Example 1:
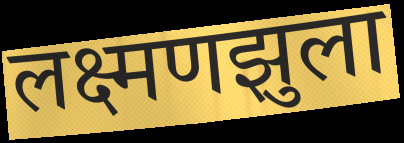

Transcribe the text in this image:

लक्ष्मणझुला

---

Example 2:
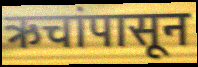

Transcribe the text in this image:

ऋचांपासून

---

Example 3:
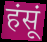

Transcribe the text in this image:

हंसूं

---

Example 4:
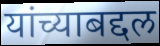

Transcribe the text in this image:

यांच्याबद्दल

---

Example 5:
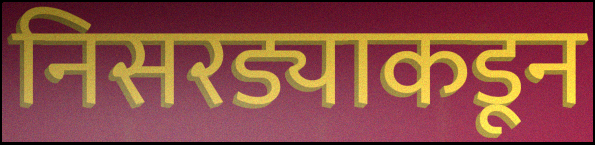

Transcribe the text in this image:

निसरड्याकडून